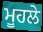
ਮੂਹਲੇ